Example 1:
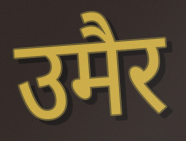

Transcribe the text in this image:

उमैर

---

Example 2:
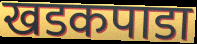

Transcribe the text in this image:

खडकपाडा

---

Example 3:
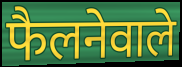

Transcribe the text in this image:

फैलनेवाले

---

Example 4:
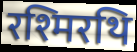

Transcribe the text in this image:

रश्मिरथि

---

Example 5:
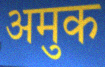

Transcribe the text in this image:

अमुक